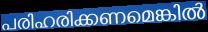
പരിഹരിക്കണമെങ്കിൽ